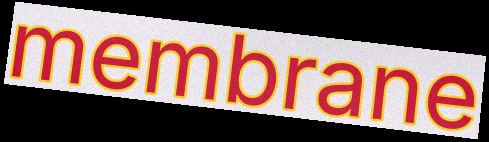
membrane